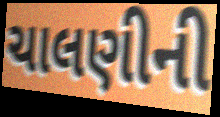
ચાલણીની